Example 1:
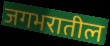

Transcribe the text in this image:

जगभरातील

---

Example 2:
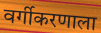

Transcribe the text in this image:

वर्गीकरणाला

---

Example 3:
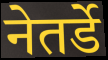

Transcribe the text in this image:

नेतर्डे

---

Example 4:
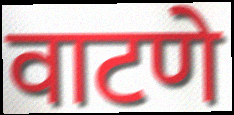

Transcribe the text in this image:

वाटणे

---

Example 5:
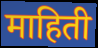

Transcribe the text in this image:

माहिती